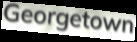
Georgetown